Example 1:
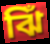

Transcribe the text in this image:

ঝিঁ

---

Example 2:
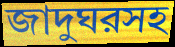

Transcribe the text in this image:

জাদুঘরসহ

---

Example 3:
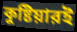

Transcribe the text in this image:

কুষ্টিয়ারই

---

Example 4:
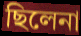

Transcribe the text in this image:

ছিলেনা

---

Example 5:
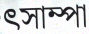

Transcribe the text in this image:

ৎসাম্পা